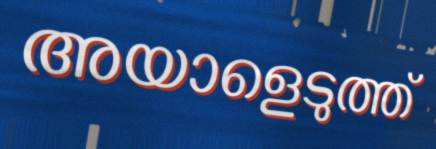
അയാളെടുത്ത്